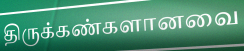
திருக்கண்களானவை